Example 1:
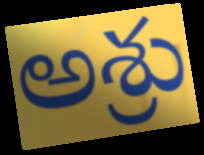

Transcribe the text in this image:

అశ్రు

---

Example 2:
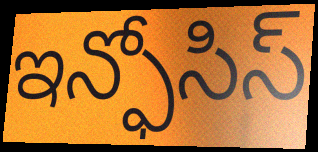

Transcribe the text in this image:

ఇన్ఫోసిస్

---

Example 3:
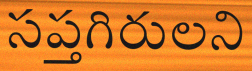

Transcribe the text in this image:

సప్తగిరులని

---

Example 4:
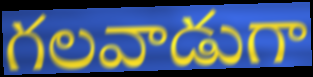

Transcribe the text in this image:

గలవాడుగా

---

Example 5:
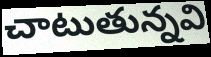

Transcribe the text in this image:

చాటుతున్నవి